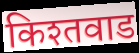
किश्तवाड